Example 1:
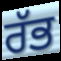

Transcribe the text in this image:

ਰੱਭ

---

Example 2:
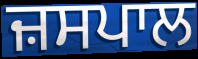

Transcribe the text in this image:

ਜ਼ਸਪਾਲ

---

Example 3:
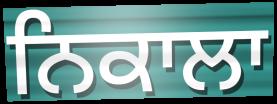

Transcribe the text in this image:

ਨਿਕਾਲਾ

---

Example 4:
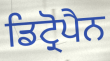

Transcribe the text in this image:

ਡਿਟ੍ਰੋਪੈਨ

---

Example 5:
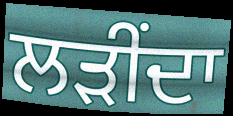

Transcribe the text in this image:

ਲੜੀਂਦਾ